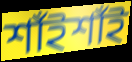
শাঁইশাঁই